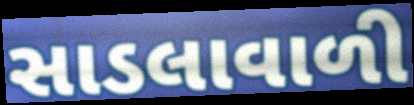
સાડલાવાળી